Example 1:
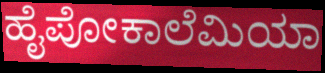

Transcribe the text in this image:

ಹೈಪೋಕಾಲೆಮಿಯಾ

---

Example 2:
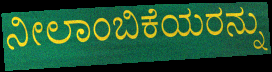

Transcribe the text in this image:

ನೀಲಾಂಬಿಕೆಯರನ್ನು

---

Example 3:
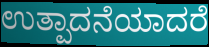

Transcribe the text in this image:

ಉತ್ಪಾದನೆಯಾದರೆ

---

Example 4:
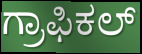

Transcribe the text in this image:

ಗ್ರಾಫಿಕಲ್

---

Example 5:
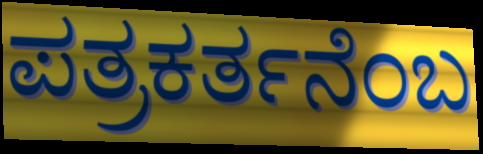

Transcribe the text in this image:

ಪತ್ರಕರ್ತನೆಂಬ